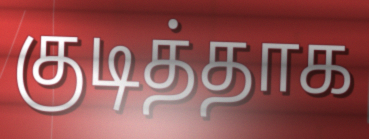
குடித்தாக